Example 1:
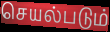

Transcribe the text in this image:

செயல்படும்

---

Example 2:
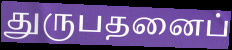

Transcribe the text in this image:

துருபதனைப்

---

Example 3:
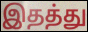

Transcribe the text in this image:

இதத்து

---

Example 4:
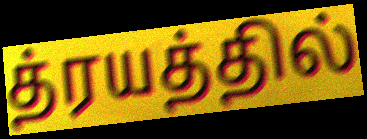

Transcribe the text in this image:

த்ரயத்தில்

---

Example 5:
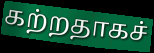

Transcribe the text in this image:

கற்றதாகச்